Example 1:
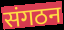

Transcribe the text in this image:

संगठन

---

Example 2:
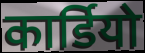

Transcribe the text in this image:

कार्डियो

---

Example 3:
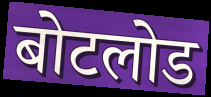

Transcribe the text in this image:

बोटलोड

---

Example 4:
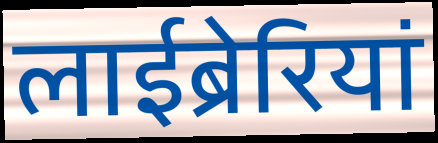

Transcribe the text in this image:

लाईब्रेरियां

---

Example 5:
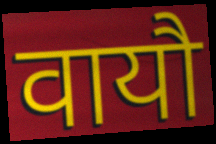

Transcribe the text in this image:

वायौ